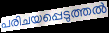
പരിചയപ്പെടുത്തൽ